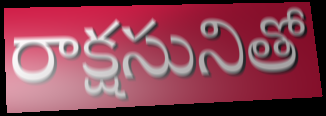
రాక్షసునితో